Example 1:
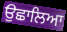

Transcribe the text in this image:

ਉਛਾਲਿਆ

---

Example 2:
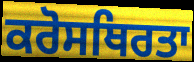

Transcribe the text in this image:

ਕਰੋਸਥਿਰਤਾ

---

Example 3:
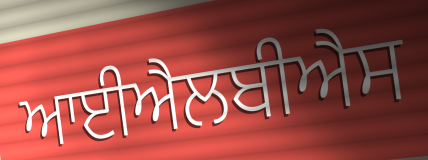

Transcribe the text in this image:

ਆਈਐਲਬੀਐਸ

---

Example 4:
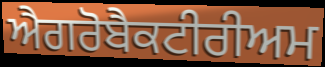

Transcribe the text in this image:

ਐਗਰੋਬੈਕਟੀਰੀਅਮ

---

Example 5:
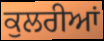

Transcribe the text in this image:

ਕੁਲਰੀਆਂ